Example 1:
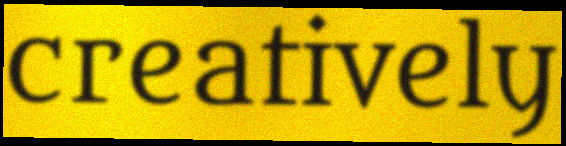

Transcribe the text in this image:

creatively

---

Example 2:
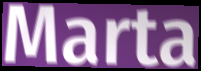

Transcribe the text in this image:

Marta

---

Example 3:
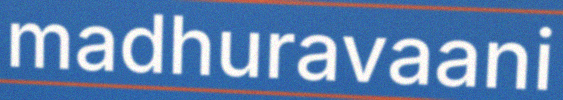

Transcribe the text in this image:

madhuravaani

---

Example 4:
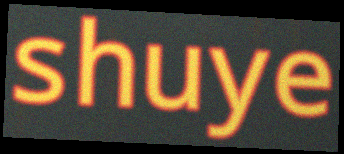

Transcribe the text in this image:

shuye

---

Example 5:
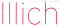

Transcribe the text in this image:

Illich